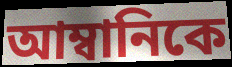
আম্বানিকে